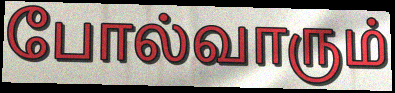
போல்வாரும்